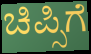
ಚಿಪ್ಸಿಗೆ